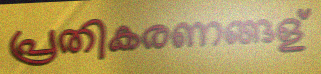
പ്രതികരണങ്ങള്